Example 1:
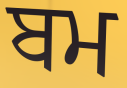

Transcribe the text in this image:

ਬਮ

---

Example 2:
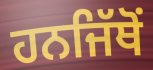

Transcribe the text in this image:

ਹਨਜਿੱਥੋਂ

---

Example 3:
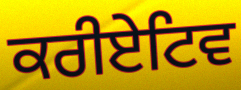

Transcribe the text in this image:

ਕਰੀਏਟਿਵ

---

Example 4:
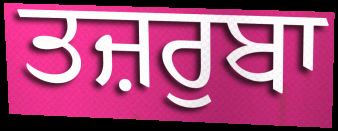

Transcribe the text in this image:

ਤਜ਼ਰੁਬਾ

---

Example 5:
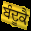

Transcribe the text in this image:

ਬੰਦੂਕੈ